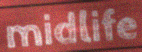
midlife